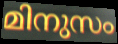
മിനുസം